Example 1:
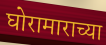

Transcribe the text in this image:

घोरामाराच्या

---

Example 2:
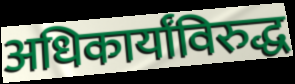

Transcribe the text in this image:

अधिकार्यांविरुद्ध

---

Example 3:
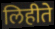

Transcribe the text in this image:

लिहीते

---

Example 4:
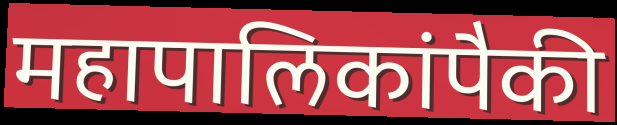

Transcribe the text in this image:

महापालिकांपैकी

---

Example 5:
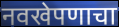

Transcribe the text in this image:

नवखेपणाचा